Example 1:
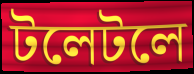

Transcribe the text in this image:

টলেটলে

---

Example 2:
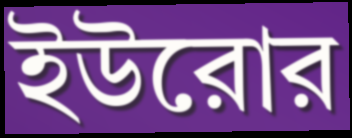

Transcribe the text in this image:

ইউরোর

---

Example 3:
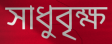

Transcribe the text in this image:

সাধুবৃক্ষ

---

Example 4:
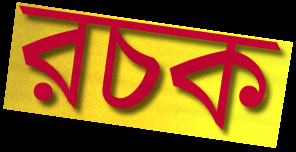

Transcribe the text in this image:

রচক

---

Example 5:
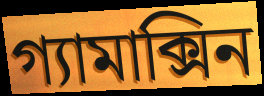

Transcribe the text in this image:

গ্যামাক্সিন